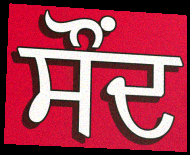
ਸੌਂਦ